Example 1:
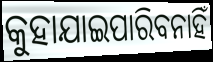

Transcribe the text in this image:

କୁହାଯାଇପାରିବନାହିଁ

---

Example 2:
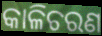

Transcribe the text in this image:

କାଳିଚରଣ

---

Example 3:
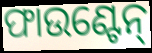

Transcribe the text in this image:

ଫାଉଣ୍ଟେନ୍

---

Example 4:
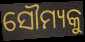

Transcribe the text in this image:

ସୌମ୍ୟକୁ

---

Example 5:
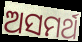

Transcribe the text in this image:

ଅସମର୍ଥ